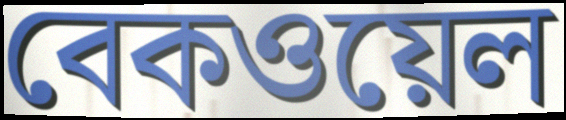
বেকওয়েল